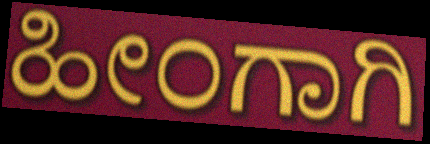
ಹೀಂಗಾಗಿ